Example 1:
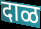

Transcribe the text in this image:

दाळ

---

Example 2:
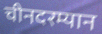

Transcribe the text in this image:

चीनदरम्यान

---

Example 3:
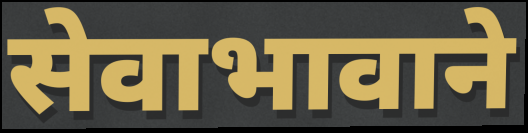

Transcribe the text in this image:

सेवाभावाने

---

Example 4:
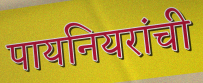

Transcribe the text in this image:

पायनियरांची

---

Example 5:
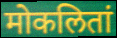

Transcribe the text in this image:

मोकलितां